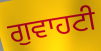
ਗੁਵਾਹਟੀ